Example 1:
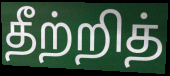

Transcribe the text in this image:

தீற்றித்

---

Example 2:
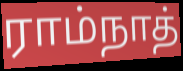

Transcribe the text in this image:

ராம்நாத்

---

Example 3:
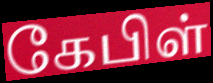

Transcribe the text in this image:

கேபிள்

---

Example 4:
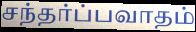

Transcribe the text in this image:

சந்தர்ப்பவாதம்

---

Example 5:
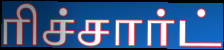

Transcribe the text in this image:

ரிச்சார்ட்